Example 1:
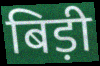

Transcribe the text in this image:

बिड़ी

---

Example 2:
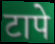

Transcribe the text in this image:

टापे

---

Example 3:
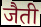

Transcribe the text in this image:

जैती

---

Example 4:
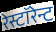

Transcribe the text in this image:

रेस्टॉरेन्ट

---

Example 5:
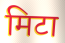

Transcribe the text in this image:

मिटा